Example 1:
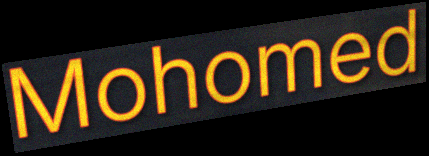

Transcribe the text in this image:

Mohomed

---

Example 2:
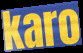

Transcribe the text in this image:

karo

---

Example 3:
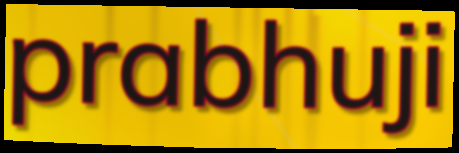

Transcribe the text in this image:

prabhuji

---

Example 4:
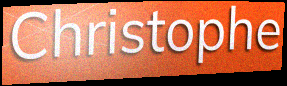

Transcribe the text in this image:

Christophe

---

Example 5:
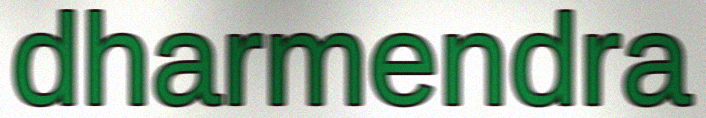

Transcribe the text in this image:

dharmendra